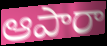
ఆపారా